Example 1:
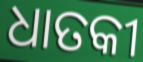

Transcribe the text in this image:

ଧାତକୀ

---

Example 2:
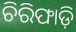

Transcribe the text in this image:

ଚିରିଫାଡ଼ି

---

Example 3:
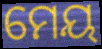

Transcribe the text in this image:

ମେୟ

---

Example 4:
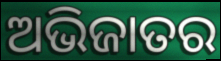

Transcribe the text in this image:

ଅଭିଜାତର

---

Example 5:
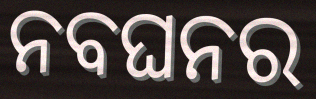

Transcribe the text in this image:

ନବଘନର